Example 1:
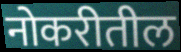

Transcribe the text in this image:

नोकरीतील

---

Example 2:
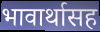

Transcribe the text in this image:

भावार्थासह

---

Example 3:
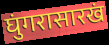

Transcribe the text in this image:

घुंगरासारखं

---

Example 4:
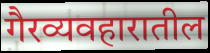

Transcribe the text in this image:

गैरव्यवहारातील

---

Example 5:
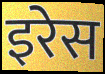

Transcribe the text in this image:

इरेस